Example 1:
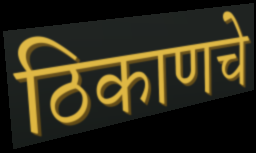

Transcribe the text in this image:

ठिकाणचे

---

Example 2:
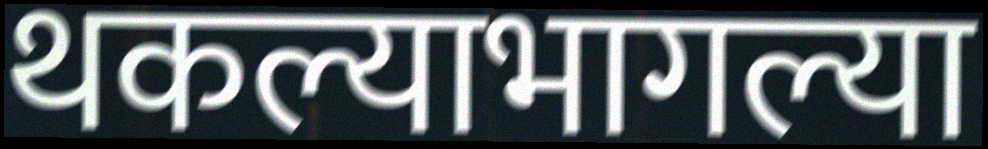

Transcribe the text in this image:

थकल्याभागल्या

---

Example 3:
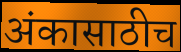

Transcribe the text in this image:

अंकासाठीच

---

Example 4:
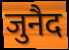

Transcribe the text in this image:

जुनैद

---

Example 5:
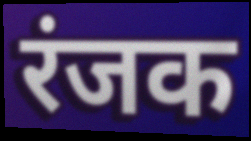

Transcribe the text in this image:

रंजक